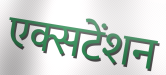
एक्सटेंशन